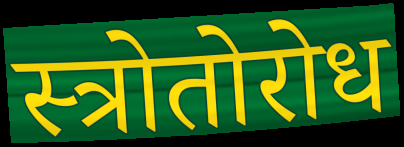
स्त्रोतोरोध